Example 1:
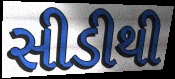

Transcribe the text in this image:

સીડીથી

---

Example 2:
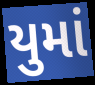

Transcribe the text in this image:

યુમાં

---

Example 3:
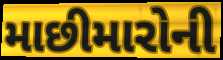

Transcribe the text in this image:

માછીમારોની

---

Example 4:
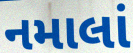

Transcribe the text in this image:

નમાલાં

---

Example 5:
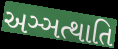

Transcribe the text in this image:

અઞ્ઞત્થાતિ